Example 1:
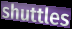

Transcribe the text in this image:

shuttles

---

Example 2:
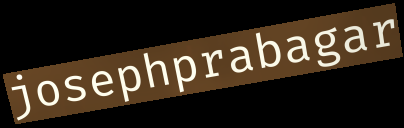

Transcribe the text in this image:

josephprabagar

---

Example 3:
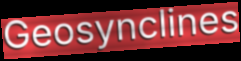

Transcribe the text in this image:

Geosynclines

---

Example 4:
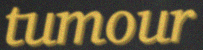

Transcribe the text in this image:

tumour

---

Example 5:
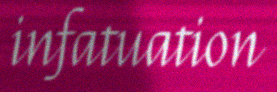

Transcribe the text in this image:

infatuation